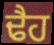
ਢੈਹ